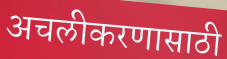
अचलीकरणासाठी